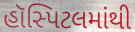
હૉસ્પિટલમાંથી